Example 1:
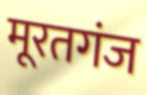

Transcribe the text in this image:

मूरतगंज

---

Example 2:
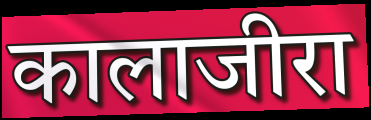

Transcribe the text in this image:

कालाजीरा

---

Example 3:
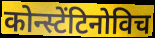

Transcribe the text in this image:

कोन्स्टेंटिनोविच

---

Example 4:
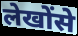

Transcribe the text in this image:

लेखोंसे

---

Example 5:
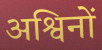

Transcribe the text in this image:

अश्विनों